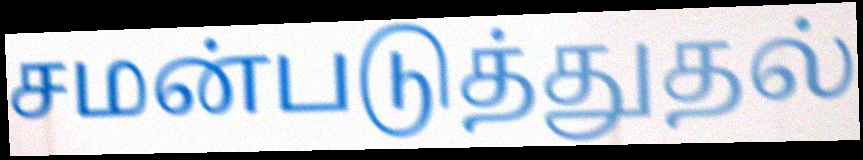
சமன்படுத்துதல்